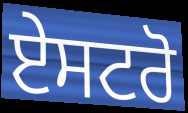
ਏਸਟਰੋ